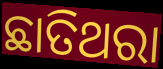
ଛାତିଥରା